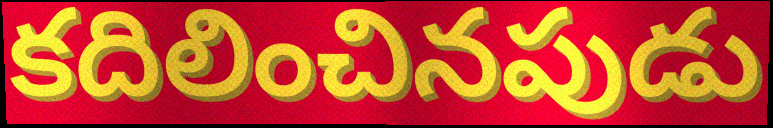
కదిలించినపుడు